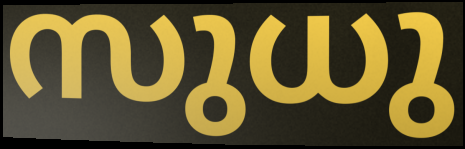
സുധു